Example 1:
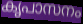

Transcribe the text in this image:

കൃപാസനം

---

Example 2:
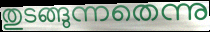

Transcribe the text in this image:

തുടങ്ങുന്നതെന്നു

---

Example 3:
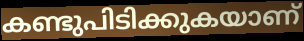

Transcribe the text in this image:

കണ്ടുപിടിക്കുകയാണ്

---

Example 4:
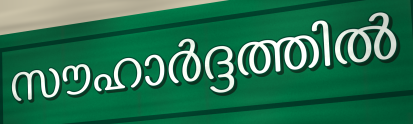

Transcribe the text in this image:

സൗഹാർദ്ദത്തിൽ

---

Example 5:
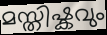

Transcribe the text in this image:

മസ്തിഷ്കവും